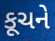
કૂચને